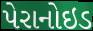
પેરાનોઇડ